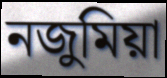
নজুমিয়া